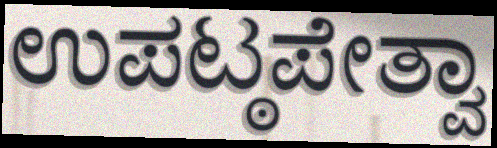
ಉಪಟ್ಠಪೇತ್ವಾ